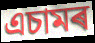
এচামৰ